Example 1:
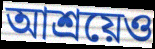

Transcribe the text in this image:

আশ্রয়েও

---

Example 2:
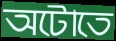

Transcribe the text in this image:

অটোতে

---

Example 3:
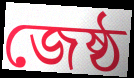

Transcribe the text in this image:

জেষ্ঠ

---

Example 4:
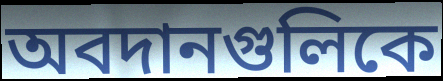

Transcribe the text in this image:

অবদানগুলিকে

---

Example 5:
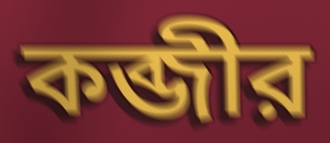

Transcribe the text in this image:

কব্জীর